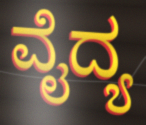
ವೈದ್ಯ